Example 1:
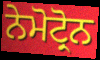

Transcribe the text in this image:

ਨੇਮੋਟ੍ਰੋਨ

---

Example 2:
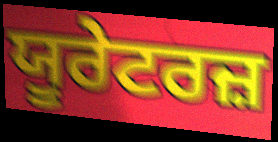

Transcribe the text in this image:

ਯੂਰੇਟਰਜ਼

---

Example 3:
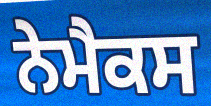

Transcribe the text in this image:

ਨੇਮੈਕਸ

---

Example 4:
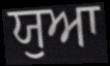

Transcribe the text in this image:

ਯੁਆ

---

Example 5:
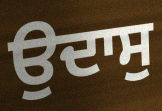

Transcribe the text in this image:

ਉਦਾਸੁ